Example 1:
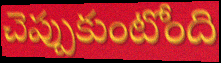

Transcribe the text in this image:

చెప్పుకుంటోంది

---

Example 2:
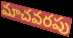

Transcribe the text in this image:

మాచవరపు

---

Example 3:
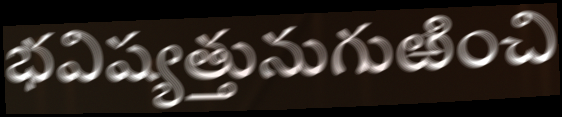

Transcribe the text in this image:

భవిష్యత్తునుగుఱించి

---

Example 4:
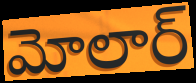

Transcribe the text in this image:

మోలార్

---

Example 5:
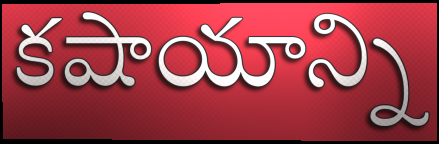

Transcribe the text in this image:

కషాయాన్ని